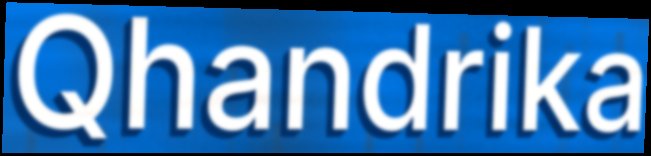
Qhandrika